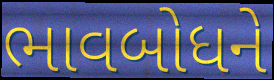
ભાવબોધને